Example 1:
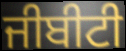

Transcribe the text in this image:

ਜੀਬੀਟੀ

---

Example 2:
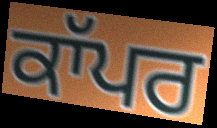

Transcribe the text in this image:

ਕਾੱਪਰ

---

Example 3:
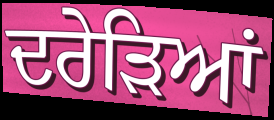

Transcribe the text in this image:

ਦਰੇੜਿਆਂ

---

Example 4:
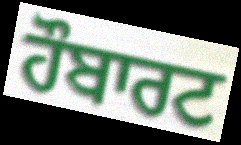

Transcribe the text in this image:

ਹੌਬਾਰਟ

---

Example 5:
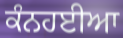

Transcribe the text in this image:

ਕੰਨਹਈਆ